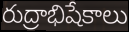
రుద్రాభిషేకాలు